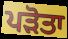
ਪੜੋਤਾ